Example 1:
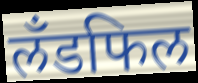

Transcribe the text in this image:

लँडफिल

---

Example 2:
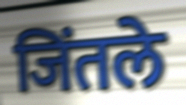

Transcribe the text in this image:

जिंतले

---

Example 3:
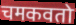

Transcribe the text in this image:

चमकवतो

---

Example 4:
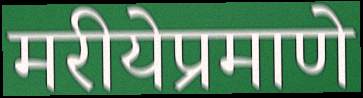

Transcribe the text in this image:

मरीयेप्रमाणे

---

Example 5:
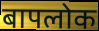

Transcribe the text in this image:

बापलोक